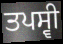
ਤਪਸ੍ਵੀ